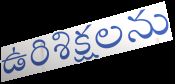
ఉరిశిక్షలను